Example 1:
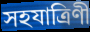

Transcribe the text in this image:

সহযাত্রিণী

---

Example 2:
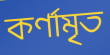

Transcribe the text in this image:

কর্ণামৃত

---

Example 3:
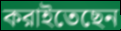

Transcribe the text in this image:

করাইতেছেন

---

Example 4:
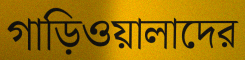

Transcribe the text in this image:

গাড়িওয়ালাদের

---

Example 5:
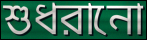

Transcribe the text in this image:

শুধরানো